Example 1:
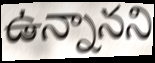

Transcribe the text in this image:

ఉన్నానని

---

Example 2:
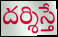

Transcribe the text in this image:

దర్శిస్తే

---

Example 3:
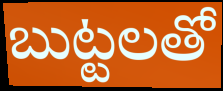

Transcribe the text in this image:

బుట్టలతో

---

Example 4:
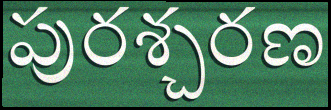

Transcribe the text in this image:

పురశ్చరణ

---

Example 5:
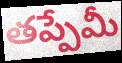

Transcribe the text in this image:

తప్పేమీ